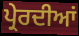
ਪ੍ਰੇਰਦੀਆਂ